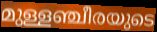
മുള്ളഞ്ചീരയുടെ